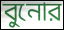
বুনোর